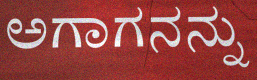
ಅಗಾಗನನ್ನು